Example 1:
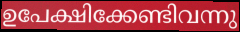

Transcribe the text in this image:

ഉപേക്ഷിക്കേണ്ടിവന്നു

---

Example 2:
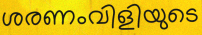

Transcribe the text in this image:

ശരണംവിളിയുടെ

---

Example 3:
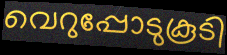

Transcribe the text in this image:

വെറുപ്പോടുകൂടി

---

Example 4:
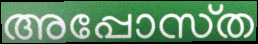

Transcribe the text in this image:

അപ്പോസ്‌ത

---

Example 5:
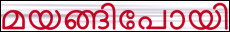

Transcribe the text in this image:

മയങ്ങിപോയി